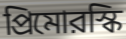
প্রিমোরস্কি